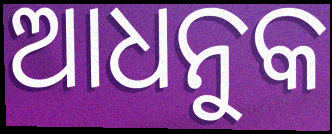
ଆଧନୁକ